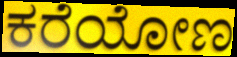
ಕರೆಯೋಣ